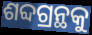
ଶବ୍ଦଗ୍ରନ୍ଥକୁ